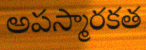
అపస్మారకత